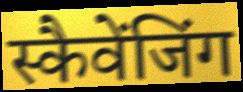
स्कैवेंजिंग